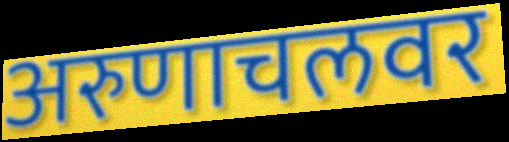
अरुणाचलवर